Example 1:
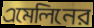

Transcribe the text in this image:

এমেলিনের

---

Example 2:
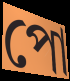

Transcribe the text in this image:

পো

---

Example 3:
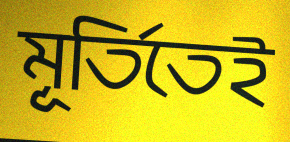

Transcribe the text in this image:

মূর্তিতেই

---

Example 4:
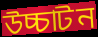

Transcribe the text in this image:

উচ্চাটন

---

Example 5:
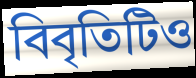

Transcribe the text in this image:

বিবৃতিটিও